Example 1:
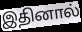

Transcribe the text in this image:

இதினால்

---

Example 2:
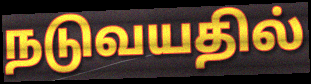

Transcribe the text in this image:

நடுவயதில்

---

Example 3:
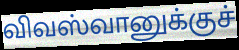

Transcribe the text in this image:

விவஸ்வானுக்குச்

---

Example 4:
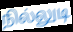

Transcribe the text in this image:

நில்லுடி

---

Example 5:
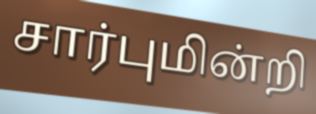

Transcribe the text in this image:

சார்புமின்றி